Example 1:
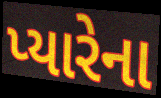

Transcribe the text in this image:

પ્યારેના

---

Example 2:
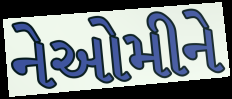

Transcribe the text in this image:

નેઓમીને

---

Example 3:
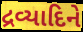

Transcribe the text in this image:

દ્રવ્યાદિને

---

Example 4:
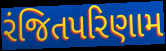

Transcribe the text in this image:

રંજિતપરિણામ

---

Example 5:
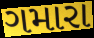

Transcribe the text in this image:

ગમારા